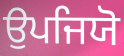
ਉਪਜਿਯੋ